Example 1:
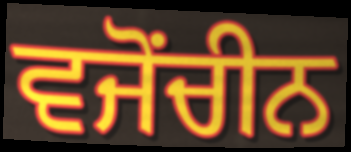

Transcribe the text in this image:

ਵਜੋਂਚੀਨ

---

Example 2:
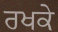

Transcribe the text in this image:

ਰਖਕੇ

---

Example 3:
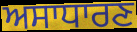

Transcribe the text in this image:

ਅਸਾਧਾਰਣ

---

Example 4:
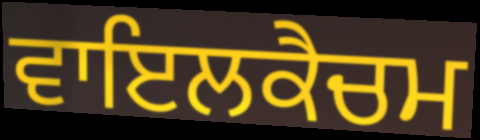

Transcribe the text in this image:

ਵਾਇਲਕੈਚਮ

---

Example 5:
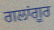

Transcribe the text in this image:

ਗਲਾਂਗੂਰ